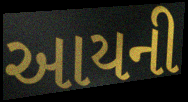
આયની